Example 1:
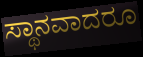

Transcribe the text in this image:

ಸ್ಥಾನವಾದರೂ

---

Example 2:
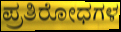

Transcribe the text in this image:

ಪ್ರತಿರೋಧಗಳ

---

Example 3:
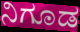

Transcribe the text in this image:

ನಿಗೂಡ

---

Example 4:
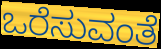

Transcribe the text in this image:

ಒರೆಸುವಂತೆ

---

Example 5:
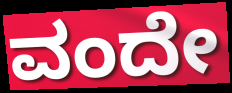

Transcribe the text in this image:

ವಂದೇ